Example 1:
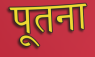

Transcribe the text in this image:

पूतना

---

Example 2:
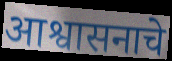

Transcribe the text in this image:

आश्वासनाचे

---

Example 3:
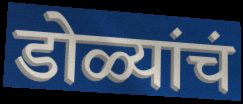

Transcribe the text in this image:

डोळ्यांचं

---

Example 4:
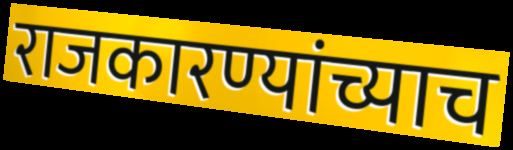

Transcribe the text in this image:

राजकारण्यांच्याच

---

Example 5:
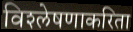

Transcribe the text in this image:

विश्लेषणाकरिता